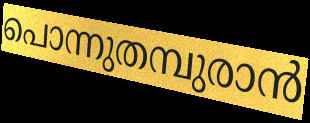
പൊന്നുതമ്പുരാൻ